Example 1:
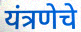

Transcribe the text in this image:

यंत्रणेचे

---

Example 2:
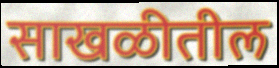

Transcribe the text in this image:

साखळीतील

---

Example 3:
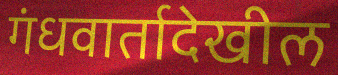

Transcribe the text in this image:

गंधवार्तादेखील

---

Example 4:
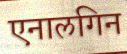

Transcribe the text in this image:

एनालगिन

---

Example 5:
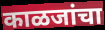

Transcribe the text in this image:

काळजांचा